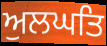
ਅੁਲਘਤਿ